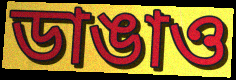
ডাঙাও